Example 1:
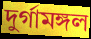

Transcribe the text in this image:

দুর্গামঙ্গল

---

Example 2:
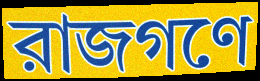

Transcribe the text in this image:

রাজগণে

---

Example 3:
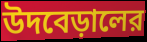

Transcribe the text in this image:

উদবেড়ালের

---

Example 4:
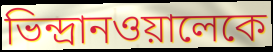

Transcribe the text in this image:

ভিন্দ্রানওয়ালেকে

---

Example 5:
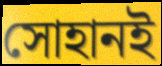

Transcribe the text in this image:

সোহানই